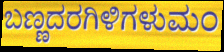
ಬಣ್ಣದರಗಿಳಿಗಳುಮಂ